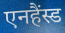
एनहैंस्ड